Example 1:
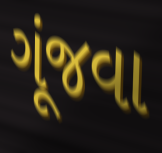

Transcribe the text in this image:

ગૂંજવા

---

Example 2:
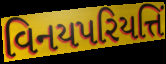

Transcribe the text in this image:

વિનયપરિયત્તિં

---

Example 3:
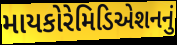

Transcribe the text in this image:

માયકોરેમિડિએશનનું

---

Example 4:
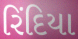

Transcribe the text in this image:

રિંદિયા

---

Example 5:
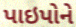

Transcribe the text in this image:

પાઇપોને